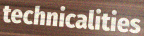
technicalities